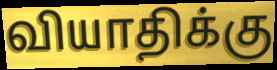
வியாதிக்கு